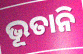
ଭୂତାନି